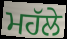
ਮਹੱਲੇ